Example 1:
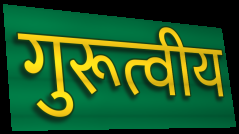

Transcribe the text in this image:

गुरूत्वीय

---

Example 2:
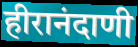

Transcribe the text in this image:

हीरानंदाणी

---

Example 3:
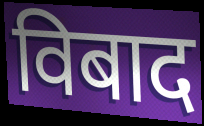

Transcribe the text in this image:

विबाद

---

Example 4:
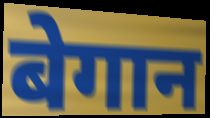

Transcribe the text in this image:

बेगान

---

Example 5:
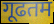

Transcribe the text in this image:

गूढतम